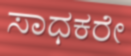
ಸಾಧಕರೇ